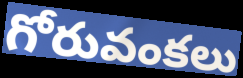
గోరువంకలు